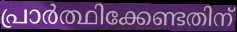
പ്രാർത്ഥിക്കേണ്ടതിന്